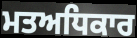
ਮਤਅਧਿਕਾਰ